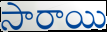
సారాయి